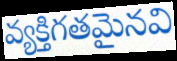
వ్యక్తిగతమైనవి